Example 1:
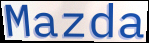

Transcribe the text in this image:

Mazda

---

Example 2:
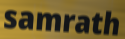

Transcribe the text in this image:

samrath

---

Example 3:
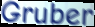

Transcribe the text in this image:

Gruber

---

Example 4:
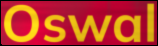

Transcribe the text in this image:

Oswal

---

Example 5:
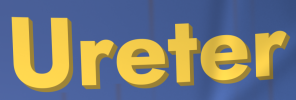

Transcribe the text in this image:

Ureter